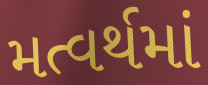
મત્વર્થમાં